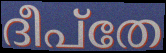
ദീപ്തേ